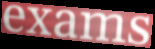
exams